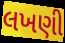
લખણી